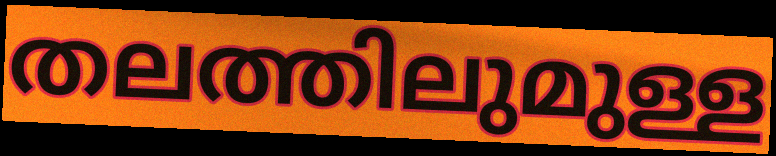
തലത്തിലുമുള്ള